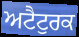
ਅਟੈਟੁਰਕ